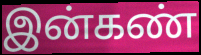
இன்கண்